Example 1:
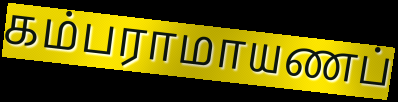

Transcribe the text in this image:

கம்பராமாயணப்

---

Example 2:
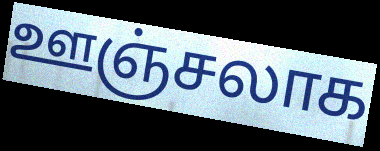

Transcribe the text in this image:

ஊஞ்சலாக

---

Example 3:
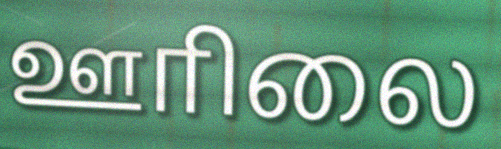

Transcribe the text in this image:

ஊரிலை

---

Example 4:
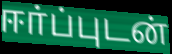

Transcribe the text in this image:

ஈர்ப்புடன்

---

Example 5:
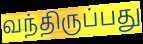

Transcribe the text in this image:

வந்திருப்பது